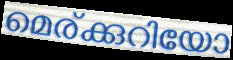
മെര്ക്കുറിയോ